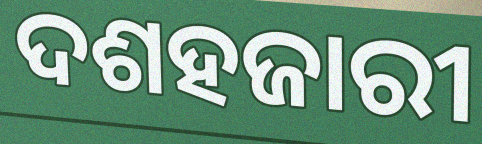
ଦଶହଜାରୀ